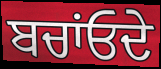
ਬਚਾਂਓਦੇ